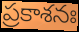
ప్రకాశనః